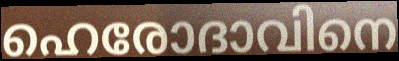
ഹെരോദാവിനെ